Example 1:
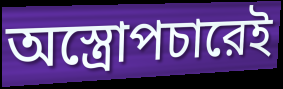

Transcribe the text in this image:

অস্ত্রোপচারেই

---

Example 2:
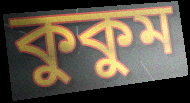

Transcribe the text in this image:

কুকুম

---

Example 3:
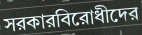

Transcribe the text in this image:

সরকারবিরোধীদের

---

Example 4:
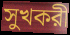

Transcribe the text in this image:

সুখকরী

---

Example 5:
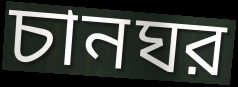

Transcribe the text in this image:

চানঘর